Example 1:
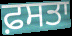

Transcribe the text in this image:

ਫ਼ਸਤਾ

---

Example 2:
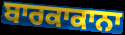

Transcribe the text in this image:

ਬਾਰਕਾਕਾਨਾ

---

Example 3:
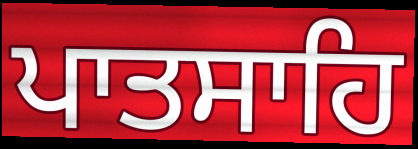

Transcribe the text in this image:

ਪਾਤਸਾਹਿ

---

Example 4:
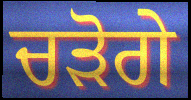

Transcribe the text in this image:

ਚੜੋਗੇ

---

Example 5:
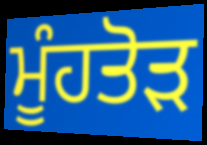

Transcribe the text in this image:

ਮੂੰਹਤੋੜ